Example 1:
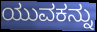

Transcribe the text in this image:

ಯುವಕನ್ನು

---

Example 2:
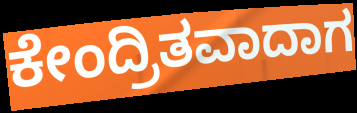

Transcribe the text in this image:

ಕೇಂದ್ರಿತವಾದಾಗ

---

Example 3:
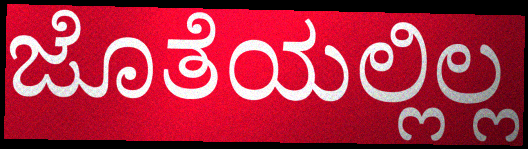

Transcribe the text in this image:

ಜೊತೆಯಲ್ಲಿಲ್ಲ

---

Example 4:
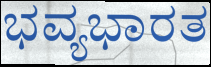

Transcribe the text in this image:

ಭವ್ಯಭಾರತ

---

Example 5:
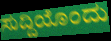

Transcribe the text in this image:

ಸುದ್ದಿಯೊಂದು